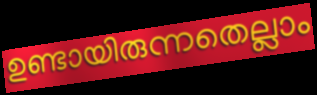
ഉണ്ടായിരുന്നതെല്ലാം